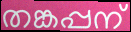
തങ്കപ്പന്